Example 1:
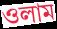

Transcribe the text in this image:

ওলাম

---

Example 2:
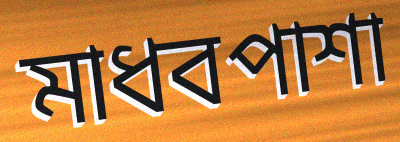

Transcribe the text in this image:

মাধবপাশা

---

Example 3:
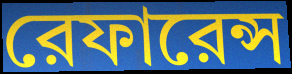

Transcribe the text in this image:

রেফারেন্স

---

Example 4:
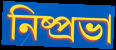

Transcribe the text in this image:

নিষ্প্রভা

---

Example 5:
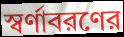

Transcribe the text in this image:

স্বর্ণাবরণের